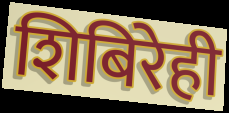
शिबिरेही